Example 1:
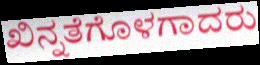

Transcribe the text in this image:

ಖಿನ್ನತೆಗೊಳಗಾದರು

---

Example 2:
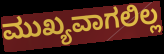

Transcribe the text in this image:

ಮುಖ್ಯವಾಗಲಿಲ್ಲ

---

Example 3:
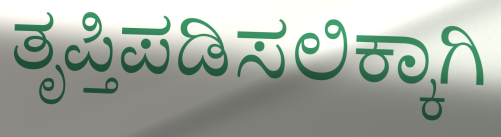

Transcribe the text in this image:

ತೃಪ್ತಿಪಡಿಸಲಿಕ್ಕಾಗಿ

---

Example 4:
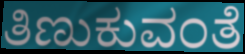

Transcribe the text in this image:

ತಿಣುಕುವಂತೆ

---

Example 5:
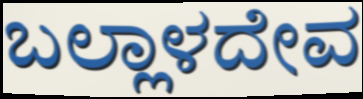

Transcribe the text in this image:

ಬಲ್ಲಾಳದೇವ